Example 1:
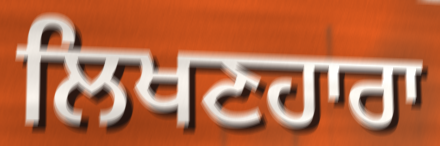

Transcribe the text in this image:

ਲਿਖਣਹਾਰਾ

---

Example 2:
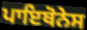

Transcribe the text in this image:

ਪਾਇਥੋਨੇਸ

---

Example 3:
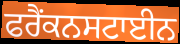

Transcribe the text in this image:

ਫਰੈਂਕਨਸਟਾਈਨ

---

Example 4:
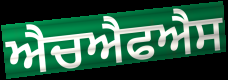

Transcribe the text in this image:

ਐਚਐਫਐਸ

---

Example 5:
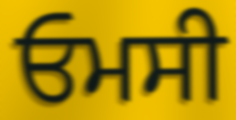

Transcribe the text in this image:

ਓਮਸੀ